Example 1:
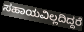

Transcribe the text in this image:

ಸಹಾಯವಿಲ್ಲದಿದ್ದರೆ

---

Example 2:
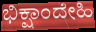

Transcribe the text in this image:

ಭಿಕ್ಷಾಂದೇಹಿ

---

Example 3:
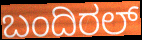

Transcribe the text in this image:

ಬಂದಿರಲ್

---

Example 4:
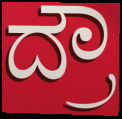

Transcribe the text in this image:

ದ್ರೌ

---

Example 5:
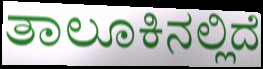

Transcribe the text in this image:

ತಾಲೂಕಿನಲ್ಲಿದೆ